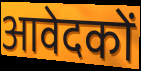
आवेदकों